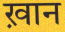
ख़ान